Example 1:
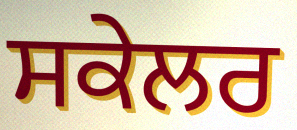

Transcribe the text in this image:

ਸਕੇਲਰ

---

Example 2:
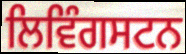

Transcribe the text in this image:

ਲਿਵਿੰਗਸਟਨ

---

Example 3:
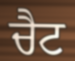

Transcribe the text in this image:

ਚੈਟ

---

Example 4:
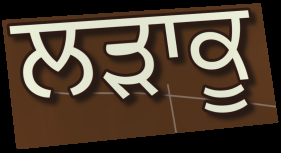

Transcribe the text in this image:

ਲੜਾਕੂ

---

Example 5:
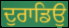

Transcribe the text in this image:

ਦੁਰਾਡਿਉ